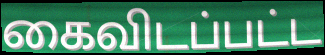
கைவிடப்பட்ட